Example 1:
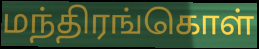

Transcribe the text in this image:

மந்திரங்கொள்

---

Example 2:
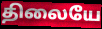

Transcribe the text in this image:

திலையே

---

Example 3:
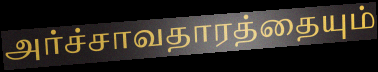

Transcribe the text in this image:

அர்ச்சாவதாரத்தையும்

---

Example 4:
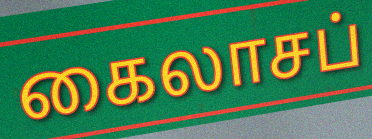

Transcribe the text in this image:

கைலாசப்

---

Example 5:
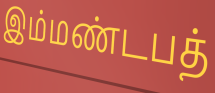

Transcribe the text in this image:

இம்மண்டபத்